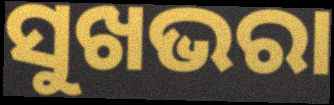
ସୁଖଭରା